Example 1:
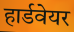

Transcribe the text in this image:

हार्डवेयर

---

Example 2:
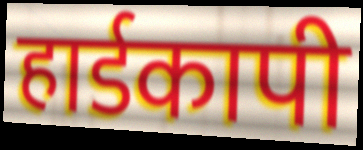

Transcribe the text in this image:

हार्डकापी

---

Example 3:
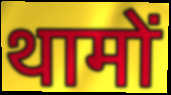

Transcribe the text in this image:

थामों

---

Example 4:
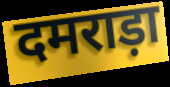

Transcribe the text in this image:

दमराड़ा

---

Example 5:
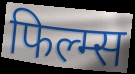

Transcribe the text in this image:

फिल्म्स